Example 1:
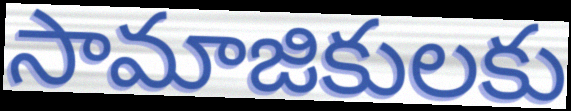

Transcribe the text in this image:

సామాజికులకు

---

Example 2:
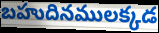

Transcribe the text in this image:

బహుదినములక్కడ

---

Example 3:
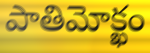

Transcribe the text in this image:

పాతిమోక్ఖం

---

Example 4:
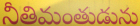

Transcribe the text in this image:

నీతిమంతుడును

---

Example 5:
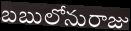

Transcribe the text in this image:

బబులోనురాజు